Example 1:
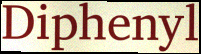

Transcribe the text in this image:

Diphenyl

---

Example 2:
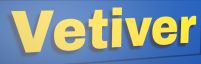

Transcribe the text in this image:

Vetiver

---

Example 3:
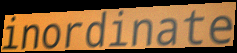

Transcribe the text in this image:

inordinate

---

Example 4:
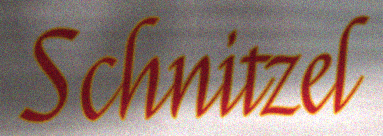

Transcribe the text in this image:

Schnitzel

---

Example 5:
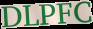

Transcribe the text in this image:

DLPFC